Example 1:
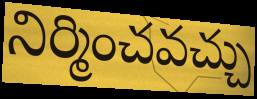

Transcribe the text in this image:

నిర్మించవచ్చు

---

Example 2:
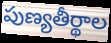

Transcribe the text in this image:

పుణ్యతీర్థాల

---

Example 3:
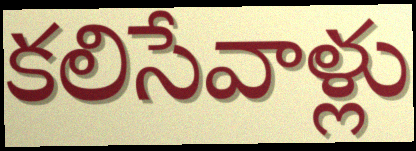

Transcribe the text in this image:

కలిసేవాళ్లు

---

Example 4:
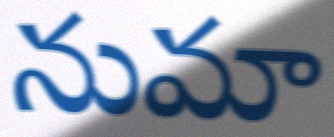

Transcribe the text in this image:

నుమా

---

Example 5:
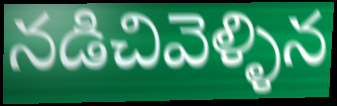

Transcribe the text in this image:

నడిచివెళ్ళిన